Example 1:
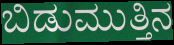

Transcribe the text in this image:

ಬಿಡುಮುತ್ತಿನ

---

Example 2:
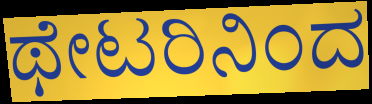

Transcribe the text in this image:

ಥೇಟರಿನಿಂದ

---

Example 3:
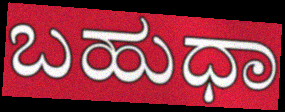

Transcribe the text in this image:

ಬಹುಧಾ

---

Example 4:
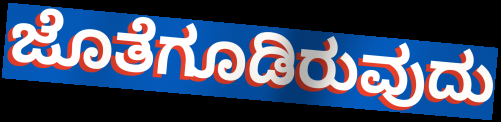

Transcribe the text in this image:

ಜೊತೆಗೂಡಿರುವುದು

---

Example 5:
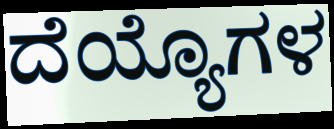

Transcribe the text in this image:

ದೆಯ್ಯೊಗಳ